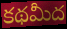
కథమీద